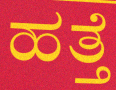
ಹತ್ತೆ